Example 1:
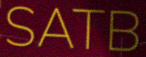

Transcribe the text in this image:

SATB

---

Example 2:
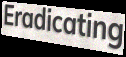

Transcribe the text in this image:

Eradicating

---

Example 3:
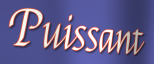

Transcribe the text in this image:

Puissant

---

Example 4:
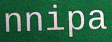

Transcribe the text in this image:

nnipa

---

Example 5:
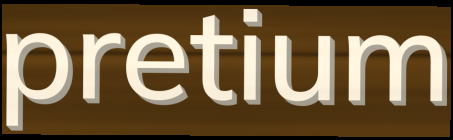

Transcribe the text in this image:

pretium